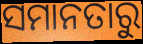
ସମାନତାରୁ